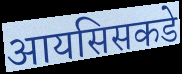
आयसिसकडे